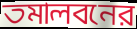
তমালবনের